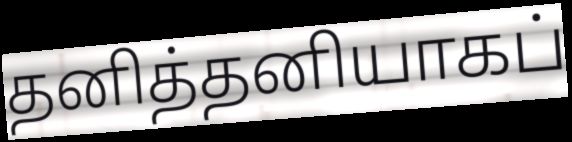
தனித்தனியாகப்